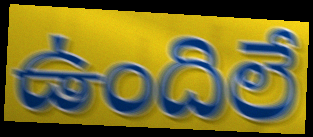
ఉందిలే